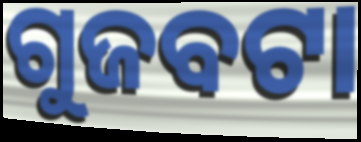
ଗୁଜବଟା